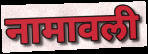
नामावली